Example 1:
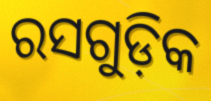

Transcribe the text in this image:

ରସଗୁଡ଼ିକ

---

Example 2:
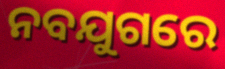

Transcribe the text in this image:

ନବଯୁଗରେ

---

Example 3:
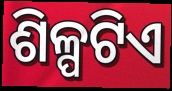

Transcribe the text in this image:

ଶିଳ୍ପଟିଏ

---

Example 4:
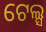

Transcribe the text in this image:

ଟେଲ୍ସ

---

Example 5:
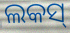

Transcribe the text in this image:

ଲକସ୍